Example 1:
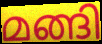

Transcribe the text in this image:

മങ്ങി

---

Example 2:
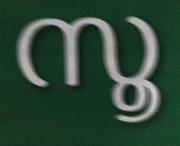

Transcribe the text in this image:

സൂ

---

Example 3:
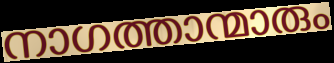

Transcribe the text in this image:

നാഗത്താന്മാരും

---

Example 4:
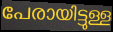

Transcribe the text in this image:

പേരായിട്ടുള്ള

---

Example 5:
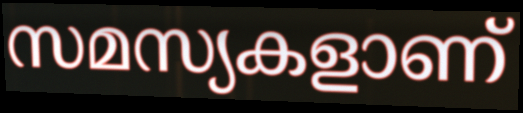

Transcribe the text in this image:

സമസ്യകളാണ്